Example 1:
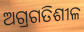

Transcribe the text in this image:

ଅଗ୍ରଗତିଶୀଳ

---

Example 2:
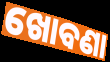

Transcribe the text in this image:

ଖୋବଣା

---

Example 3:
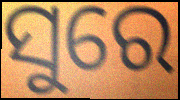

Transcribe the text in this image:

ସୁରେ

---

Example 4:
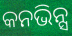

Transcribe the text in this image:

କନଭିନ୍ସ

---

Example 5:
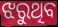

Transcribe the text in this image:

ଝରୁଥିବ